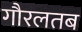
गौरलतब